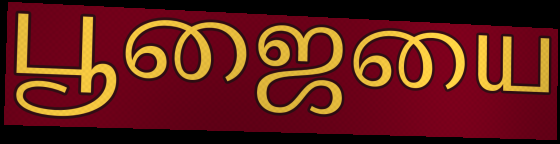
பூஜையை